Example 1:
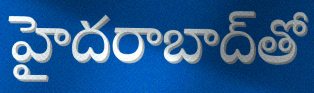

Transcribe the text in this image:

హైదరాబాద్‌తో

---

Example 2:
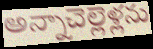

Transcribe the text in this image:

అన్నాచెల్లెళ్లను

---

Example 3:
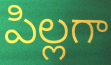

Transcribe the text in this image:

పిల్లగా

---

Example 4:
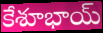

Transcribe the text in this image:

కేశూభాయ్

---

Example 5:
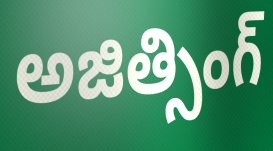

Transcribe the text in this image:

అజిత్సింగ్